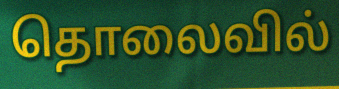
தொலைவில்